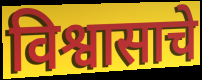
विश्वासाचे